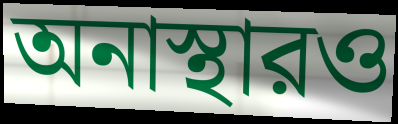
অনাস্থারও